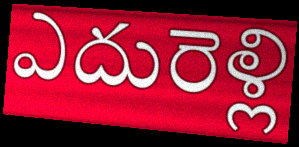
ఎదురెళ్లి